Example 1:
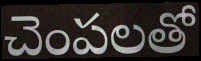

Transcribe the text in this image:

చెంపలతో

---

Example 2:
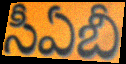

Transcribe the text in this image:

సీఏబీ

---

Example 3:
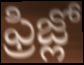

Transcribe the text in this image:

ఫ్రిజ్లో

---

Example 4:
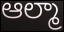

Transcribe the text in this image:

ఆల్మా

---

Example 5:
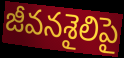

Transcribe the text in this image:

జీవనశైలిపై